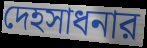
দেহসাধনার